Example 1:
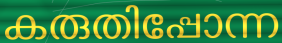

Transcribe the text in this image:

കരുതിപ്പോന്ന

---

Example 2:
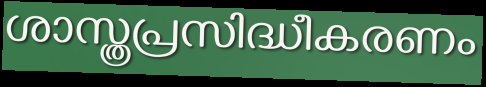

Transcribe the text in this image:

ശാസ്ത്രപ്രസിദ്ധീകരണം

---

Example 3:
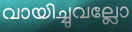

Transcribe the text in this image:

വായിച്ചുവല്ലോ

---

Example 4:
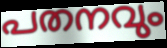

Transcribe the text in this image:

പതനവും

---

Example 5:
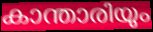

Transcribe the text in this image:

കാന്താരിയും